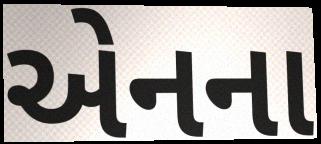
એનના